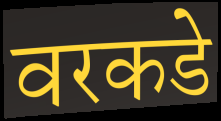
वरकडे